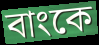
বাংকে